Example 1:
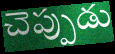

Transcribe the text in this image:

చెప్పుడు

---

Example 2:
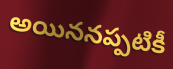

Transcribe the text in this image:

అయిననప్పటికీ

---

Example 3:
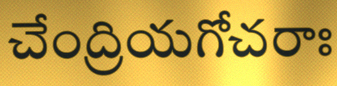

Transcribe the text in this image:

చేంద్రియగోచరాః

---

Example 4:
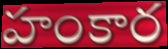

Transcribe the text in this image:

హంకార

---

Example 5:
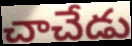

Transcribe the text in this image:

చాచేడు